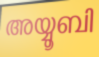
അയ്യൂബി